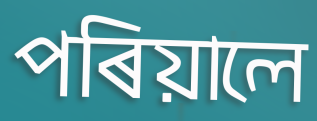
পৰিয়ালে